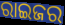
ରାଇଜର